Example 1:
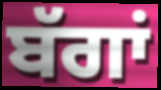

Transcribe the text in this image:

ਬੱਗਾਂ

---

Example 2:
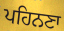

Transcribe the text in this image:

ਪਹਿਨਣਾ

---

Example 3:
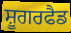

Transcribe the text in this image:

ਸ਼ੂਗਰਫੈਡ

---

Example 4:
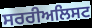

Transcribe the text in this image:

ਸਰਰੀਅਲਿਸਟ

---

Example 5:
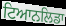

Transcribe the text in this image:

ਟਿਆਨਲਿਡਾ